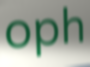
oph